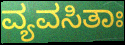
ವ್ಯವಸಿತಾಃ